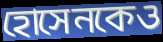
হোসেনকেও